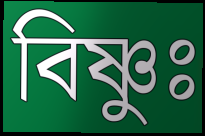
বিষ্ণুঃ